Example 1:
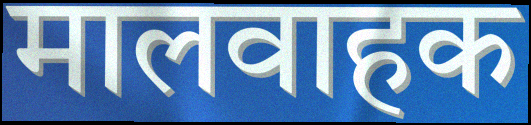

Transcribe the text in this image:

मालवाहक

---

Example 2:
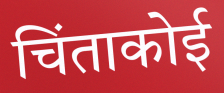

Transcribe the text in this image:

चिंताकोई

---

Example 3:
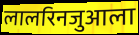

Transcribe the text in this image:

लालरिनजुआला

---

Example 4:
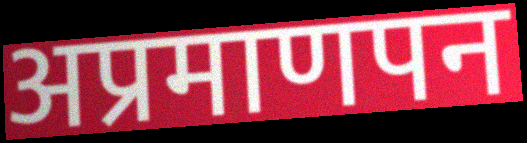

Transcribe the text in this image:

अप्रमाणपन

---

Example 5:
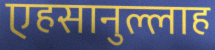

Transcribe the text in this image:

एहसानुल्लाह